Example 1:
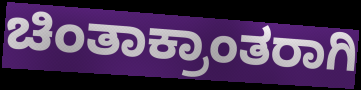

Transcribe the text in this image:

ಚಿಂತಾಕ್ರಾಂತರಾಗಿ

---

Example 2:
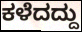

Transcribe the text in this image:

ಕಳೆದದ್ದು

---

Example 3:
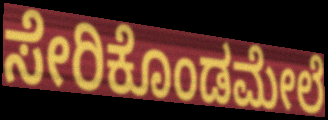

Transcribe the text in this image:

ಸೇರಿಕೊಂಡಮೇಲೆ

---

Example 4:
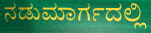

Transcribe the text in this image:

ನಡುಮಾರ್ಗದಲ್ಲಿ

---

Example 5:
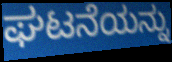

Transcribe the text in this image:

ಘಟನೆಯನ್ನು